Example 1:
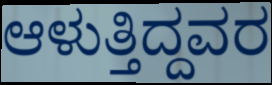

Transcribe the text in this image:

ಆಳುತ್ತಿದ್ದವರ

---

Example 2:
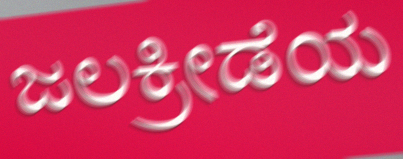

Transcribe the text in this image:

ಜಲಕ್ರೀಡೆಯ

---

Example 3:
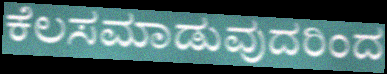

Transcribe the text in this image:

ಕೆಲಸಮಾಡುವುದರಿಂದ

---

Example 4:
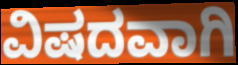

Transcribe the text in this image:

ವಿಷದವಾಗಿ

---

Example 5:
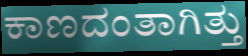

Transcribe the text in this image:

ಕಾಣದಂತಾಗಿತ್ತು